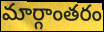
మార్గాంతరం